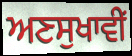
ਅਣਸੁਖਾਵੀਂ